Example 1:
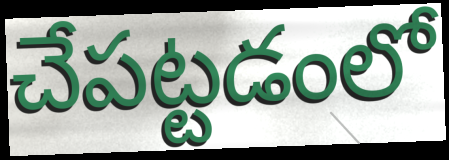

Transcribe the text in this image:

చేపట్టడంలో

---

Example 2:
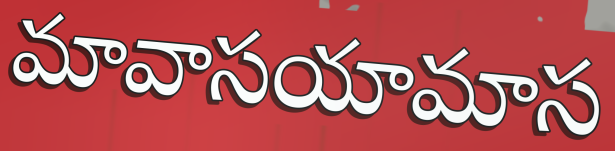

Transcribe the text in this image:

మావాసయామాస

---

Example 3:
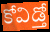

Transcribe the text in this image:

కోవిడ్తో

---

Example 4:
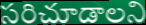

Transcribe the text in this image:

సరిచూడాలని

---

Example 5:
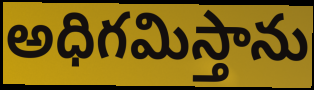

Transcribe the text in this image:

అధిగమిస్తాను